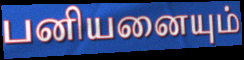
பனியனையும்